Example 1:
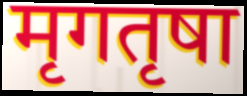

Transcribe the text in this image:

मृगतृषा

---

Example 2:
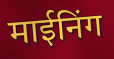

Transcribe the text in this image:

माईनिंग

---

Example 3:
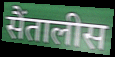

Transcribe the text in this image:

सैंतालीस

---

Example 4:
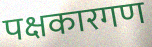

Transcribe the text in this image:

पक्षकारगण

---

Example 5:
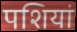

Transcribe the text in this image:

पशियां